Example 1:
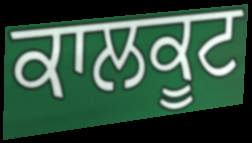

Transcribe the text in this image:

ਕਾਲਕੂਟ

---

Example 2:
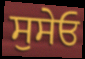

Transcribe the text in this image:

ਸੁਸੇਓ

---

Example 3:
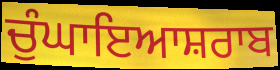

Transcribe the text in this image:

ਚੁੰਘਾਇਆਸ਼ਰਾਬ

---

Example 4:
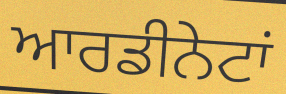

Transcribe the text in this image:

ਆਰਡੀਨੇਟਾਂ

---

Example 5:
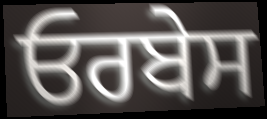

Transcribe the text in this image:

ਓਰਬੇਸ